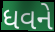
ધવને